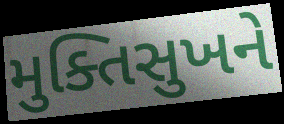
મુક્તિસુખને